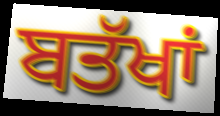
ਬਤੱਖਾਂ